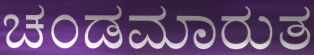
ಚಂಡಮಾರುತ